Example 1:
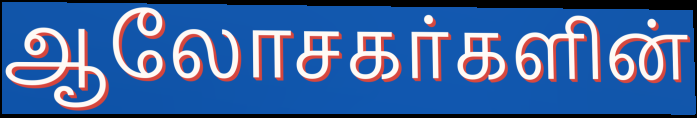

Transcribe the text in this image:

ஆலோசகர்களின்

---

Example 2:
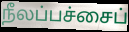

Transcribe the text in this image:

நீலப்பச்சைப்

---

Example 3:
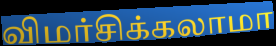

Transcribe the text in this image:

விமர்சிக்கலாமா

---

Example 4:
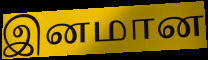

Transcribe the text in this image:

இனமான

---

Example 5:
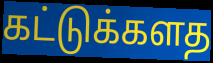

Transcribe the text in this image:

கட்டுக்களத